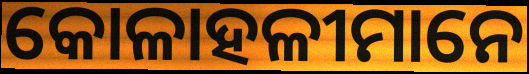
କୋଳାହଳୀମାନେ